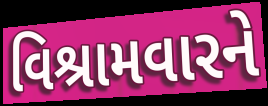
વિશ્રામવારને